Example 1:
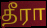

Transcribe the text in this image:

தீரா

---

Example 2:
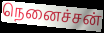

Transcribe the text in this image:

நெனைச்சன்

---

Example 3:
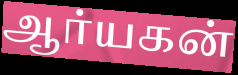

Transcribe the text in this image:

ஆர்யகன்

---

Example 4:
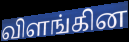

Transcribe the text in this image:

விளங்கின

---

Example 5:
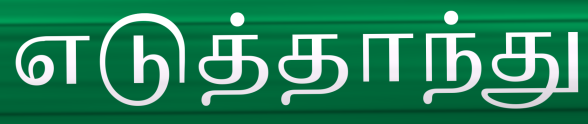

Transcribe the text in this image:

எடுத்தாந்து